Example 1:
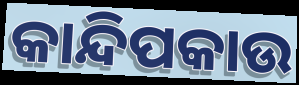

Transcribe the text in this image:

କାନ୍ଦିପକାଉ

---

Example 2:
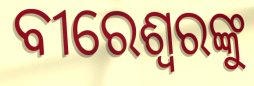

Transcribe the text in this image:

ବୀରେଶ୍ୱରଙ୍କୁ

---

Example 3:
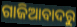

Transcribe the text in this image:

ଗାଜିଆବାଦରୁ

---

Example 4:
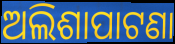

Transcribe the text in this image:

ଅଲିଶାପାଟଣା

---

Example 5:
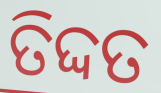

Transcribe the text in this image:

ତିଦ୍ଦତ